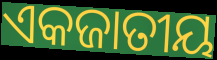
ଏକଜାତୀୟ